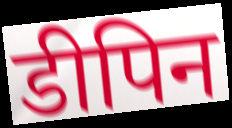
डीपिन